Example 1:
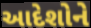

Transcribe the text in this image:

આદેશોને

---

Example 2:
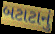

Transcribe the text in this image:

બટાટાનું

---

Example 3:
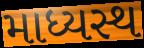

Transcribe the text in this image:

માધ્યસ્થ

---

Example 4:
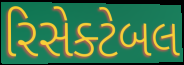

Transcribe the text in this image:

રિસેક્ટેબલ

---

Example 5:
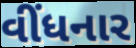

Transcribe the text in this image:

વીંધનાર